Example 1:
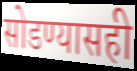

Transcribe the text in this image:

सोडण्यासही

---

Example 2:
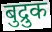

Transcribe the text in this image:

बुद्रुक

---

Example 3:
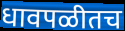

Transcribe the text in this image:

धावपळीतच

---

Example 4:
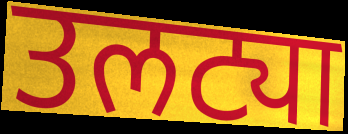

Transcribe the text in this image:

उलट्या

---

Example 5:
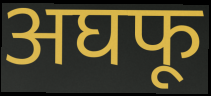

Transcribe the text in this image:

अघफू